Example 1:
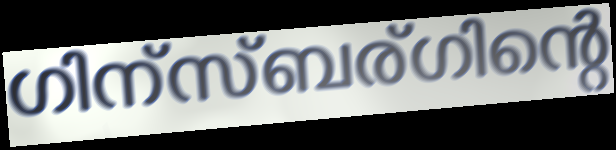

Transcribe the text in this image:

ഗിന്സ്ബര്ഗിന്റെ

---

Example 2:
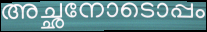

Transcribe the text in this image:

അച്ഛനോടൊപ്പം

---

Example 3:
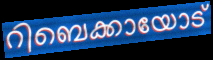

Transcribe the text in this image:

റിബെക്കായോട്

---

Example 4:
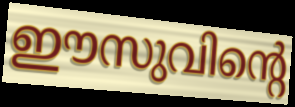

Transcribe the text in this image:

ഈസുവിന്റെ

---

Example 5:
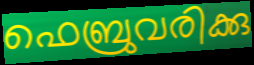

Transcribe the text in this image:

ഫെബ്രുവരിക്കു